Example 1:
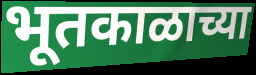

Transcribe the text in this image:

भूतकाळाच्या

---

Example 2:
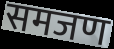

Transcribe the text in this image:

समजण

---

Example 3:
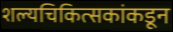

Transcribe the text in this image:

शल्यचिकित्सकांकडून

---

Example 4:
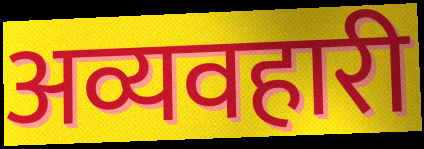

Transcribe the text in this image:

अव्यवहारी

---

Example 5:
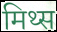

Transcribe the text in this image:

मिथ्स